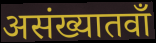
असंख्यातवाँ